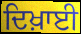
ਦਿਖ਼ਾਈ